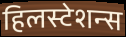
हिलस्टेशन्स